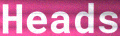
Heads